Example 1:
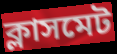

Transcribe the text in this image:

ক্লাসমেট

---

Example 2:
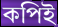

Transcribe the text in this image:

কপিই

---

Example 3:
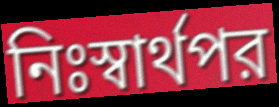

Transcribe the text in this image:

নিঃস্বার্থপর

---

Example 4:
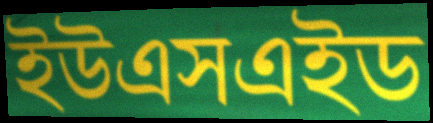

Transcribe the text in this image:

ইউএসএইড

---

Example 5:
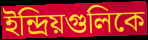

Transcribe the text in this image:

ইন্দ্রিয়গুলিকে